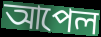
আপেল